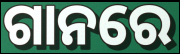
ଗାନରେ